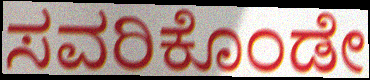
ಸವರಿಕೊಂಡೇ